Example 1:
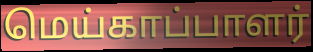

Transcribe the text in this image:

மெய்காப்பாளர்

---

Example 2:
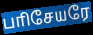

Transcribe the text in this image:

பரிசேயரே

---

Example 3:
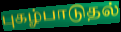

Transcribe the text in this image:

புகழ்பாடுதல்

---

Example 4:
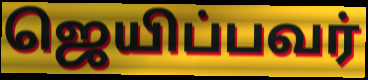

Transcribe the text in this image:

ஜெயிப்பவர்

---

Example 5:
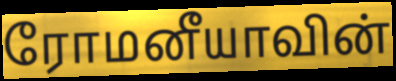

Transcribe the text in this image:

ரோமனீயாவின்